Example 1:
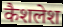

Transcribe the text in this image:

कैशलेश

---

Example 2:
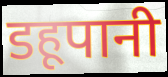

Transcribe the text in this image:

डहूपानी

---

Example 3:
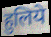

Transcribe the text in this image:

हुलिये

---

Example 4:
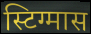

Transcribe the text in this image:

स्टिग्मास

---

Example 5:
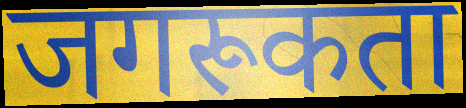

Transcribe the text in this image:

जगरूकता